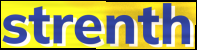
strenth